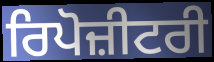
ਰਿਪੋਜ਼ੀਟਰੀ